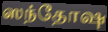
ஸந்தோஷ